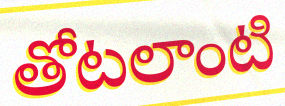
తోటలాంటి